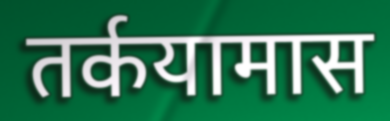
तर्कयामास